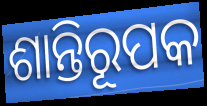
ଶାନ୍ତିରୂପକ